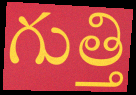
గుత్తి